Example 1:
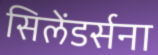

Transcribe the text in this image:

सिलेंडर्सना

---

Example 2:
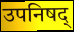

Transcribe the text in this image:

उपनिषद्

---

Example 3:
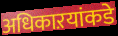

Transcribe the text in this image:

अधिकाऱयांकडे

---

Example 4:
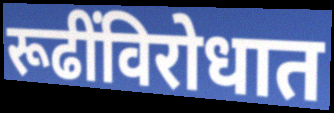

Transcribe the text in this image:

रूढींविरोधात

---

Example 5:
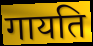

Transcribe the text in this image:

गायति